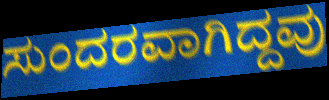
ಸುಂದರವಾಗಿದ್ದವು